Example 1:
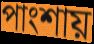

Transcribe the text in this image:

পাংশায়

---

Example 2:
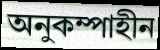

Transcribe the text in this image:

অনুকম্পাহীন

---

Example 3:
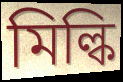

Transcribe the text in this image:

মিল্কি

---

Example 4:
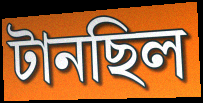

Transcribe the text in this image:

টানছিল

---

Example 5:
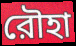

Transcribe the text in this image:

রৌহা